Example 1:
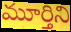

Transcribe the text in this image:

మూర్తిని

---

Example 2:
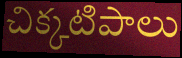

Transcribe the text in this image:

చిక్కటిపాలు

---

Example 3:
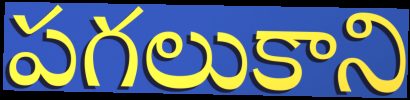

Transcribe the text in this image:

పగలుకాని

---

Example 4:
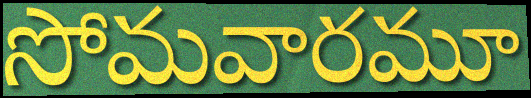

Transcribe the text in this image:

సోమవారమూ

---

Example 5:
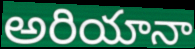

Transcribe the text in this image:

అరియానా